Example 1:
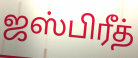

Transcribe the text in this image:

ஜஸ்பிரீத்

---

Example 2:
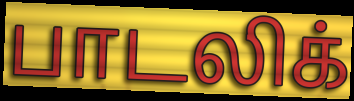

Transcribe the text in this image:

பாடலிக்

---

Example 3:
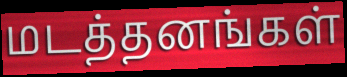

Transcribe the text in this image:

மடத்தனங்கள்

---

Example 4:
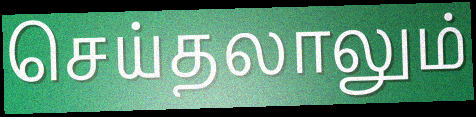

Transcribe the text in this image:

செய்தலாலும்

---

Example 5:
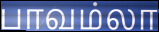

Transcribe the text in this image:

பாவம்லா